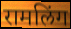
रामलिंग